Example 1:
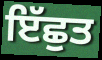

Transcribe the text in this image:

ਇੱਛੁਤ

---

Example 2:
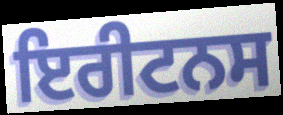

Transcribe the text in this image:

ਇਰੀਟਨਸ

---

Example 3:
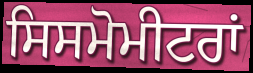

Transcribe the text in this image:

ਸਿਸਮੋਮੀਟਰਾਂ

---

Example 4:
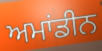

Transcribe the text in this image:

ਅਮਾਂਡੀਨ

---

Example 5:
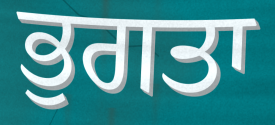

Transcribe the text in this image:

ਭੁਗਤਾ